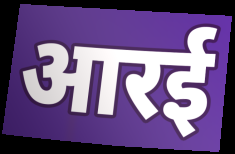
आरई